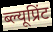
ब्ल्यूप्रिंट